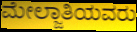
ಮೇಲ್ಜಾತಿಯವರು